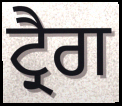
ਟ੍ਰੈਗ